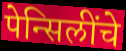
पेन्सिलींचे